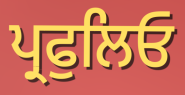
ਪ੍ਰਫੁਲਿਓ